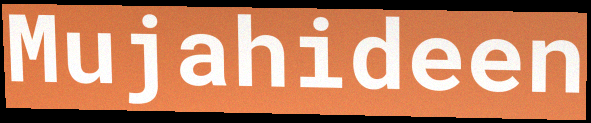
Mujahideen